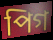
পিগ